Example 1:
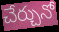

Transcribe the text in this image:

చేర్చునో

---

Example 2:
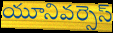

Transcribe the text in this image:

యూనివర్సెస్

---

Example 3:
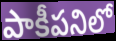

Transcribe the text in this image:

పాకీపనిలో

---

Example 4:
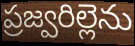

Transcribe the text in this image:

ప్రజ్వరిల్లెను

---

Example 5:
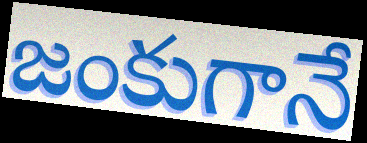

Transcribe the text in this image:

జంకుగానే